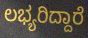
ಲಭ್ಯರಿದ್ದಾರೆ